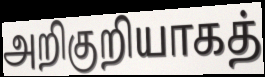
அறிகுறியாகத்